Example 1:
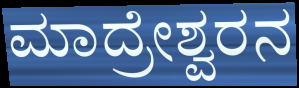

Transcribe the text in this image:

ಮಾದ್ರೇಶ್ವರನ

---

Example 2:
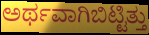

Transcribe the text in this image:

ಅರ್ಥವಾಗಿಬಿಟ್ಟಿತ್ತು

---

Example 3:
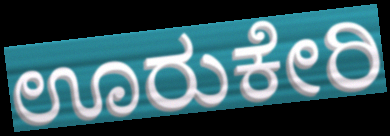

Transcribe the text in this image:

ಊರುಕೇರಿ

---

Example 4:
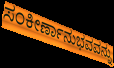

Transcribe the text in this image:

ಸಂಕೀರ್ಣಾನುಭವವನ್ನು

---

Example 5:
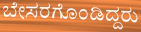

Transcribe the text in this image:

ಬೇಸರಗೊಂಡಿದ್ದರು